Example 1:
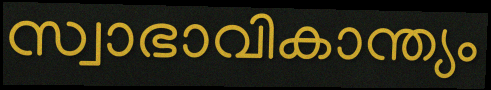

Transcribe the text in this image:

സ്വാഭാവികാന്ത്യം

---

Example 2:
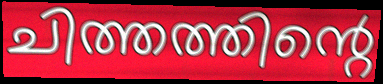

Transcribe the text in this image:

ചിത്തത്തിന്റെ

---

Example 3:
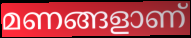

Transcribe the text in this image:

മണങ്ങളാണ്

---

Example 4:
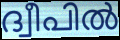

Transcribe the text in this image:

ദ്വീപിൽ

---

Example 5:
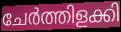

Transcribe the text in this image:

ചേർത്തിളക്കി